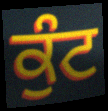
ਕੁੰਟ